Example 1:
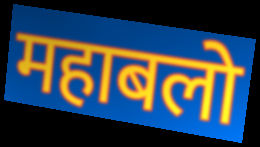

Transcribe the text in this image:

महाबलो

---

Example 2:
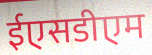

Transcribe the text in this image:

ईएसडीएम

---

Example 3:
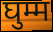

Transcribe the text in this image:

घुम्म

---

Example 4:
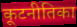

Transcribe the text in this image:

कूटनीतिका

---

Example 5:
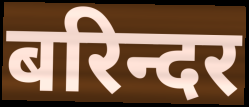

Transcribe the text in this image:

बरिन्दर